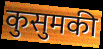
कुसुमकी